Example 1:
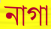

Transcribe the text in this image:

নাগা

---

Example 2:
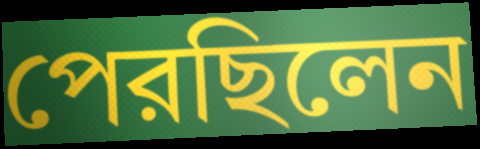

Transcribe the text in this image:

পেরছিলেন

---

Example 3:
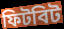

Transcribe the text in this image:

ফিটবিট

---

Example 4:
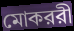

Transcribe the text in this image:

মোকররী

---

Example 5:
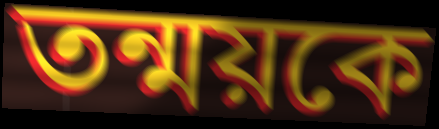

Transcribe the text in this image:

তন্ময়কে